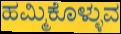
ಹಮ್ಮಿಕೊಳ್ಳುವ